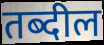
तब्दील